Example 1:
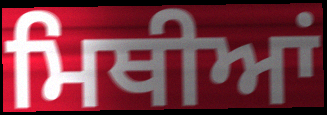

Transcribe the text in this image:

ਮਿਥੀਆਂ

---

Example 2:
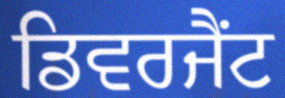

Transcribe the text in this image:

ਡਿਵਰਜੈਂਟ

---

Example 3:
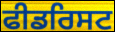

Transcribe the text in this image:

ਫੀਡਰਿਸਟ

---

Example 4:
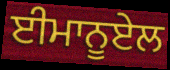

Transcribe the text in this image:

ਈਮਾਨੂਏਲ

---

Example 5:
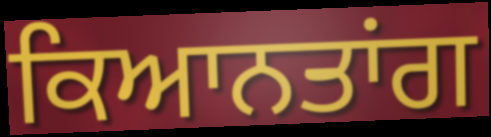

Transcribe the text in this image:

ਕਿਆਨਤਾਂਗ